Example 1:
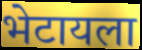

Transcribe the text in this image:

भेटायला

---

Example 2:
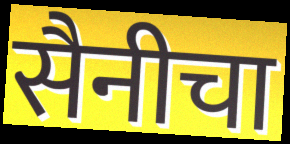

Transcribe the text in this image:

सैनीचा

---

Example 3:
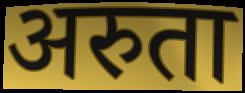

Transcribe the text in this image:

अरुता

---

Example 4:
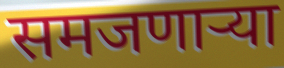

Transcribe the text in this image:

समजणाऱ्या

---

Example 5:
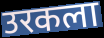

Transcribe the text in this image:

उरकला